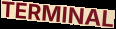
TERMINAL